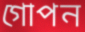
গোপন